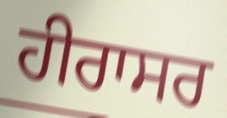
ਹੀਰਾਸਰ